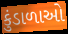
કુંડાળાઓ